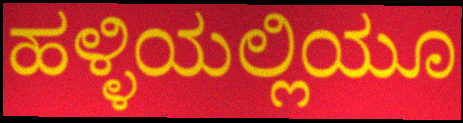
ಹಳ್ಳಿಯಲ್ಲಿಯೂ